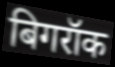
बिगरॉक